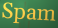
Spam